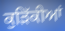
ਕੁੜਿੱਕੀਆਂ